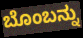
ಬೊಂಬನ್ನು